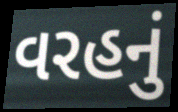
વરહનું